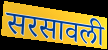
सरसावली